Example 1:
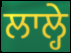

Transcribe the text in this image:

ਲਾਲ੍ਹੇ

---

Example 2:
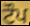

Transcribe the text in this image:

ਟੌਪ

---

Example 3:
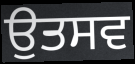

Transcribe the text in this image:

ਉਤਸਵ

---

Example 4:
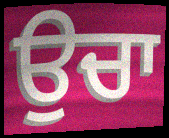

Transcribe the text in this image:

ਉਚਾ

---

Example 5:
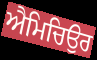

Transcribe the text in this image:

ਐਮਿਚਿਉਰ